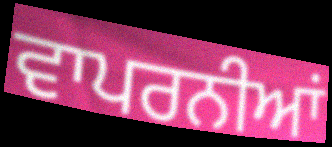
ਵਾਪਰਨੀਆਂ